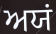
ਅਯਂ